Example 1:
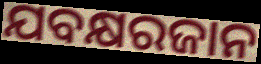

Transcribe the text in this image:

ଯବକ୍ଷରଜାନ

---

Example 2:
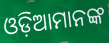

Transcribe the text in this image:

ଓଡ଼ିଆମାନଙ୍କ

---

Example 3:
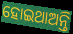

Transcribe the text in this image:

ହୋଇଥାଅନ୍ତି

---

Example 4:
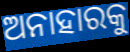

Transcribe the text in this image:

ଅନାହାରକୁ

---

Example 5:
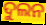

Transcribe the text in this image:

ଦୁଲନ